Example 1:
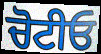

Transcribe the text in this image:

ਚੋਟੀਓ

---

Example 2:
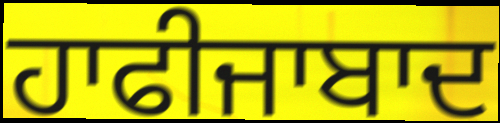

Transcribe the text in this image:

ਹਾਫੀਜਾਬਾਦ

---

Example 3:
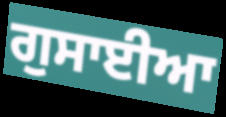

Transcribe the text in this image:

ਗੁਸਾਈਆ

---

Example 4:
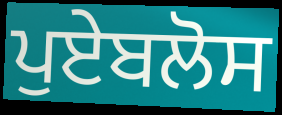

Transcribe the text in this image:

ਪੁਏਬਲੋਸ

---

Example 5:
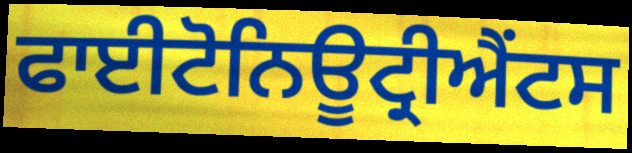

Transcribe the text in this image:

ਫਾਈਟੋਨਿਊਟ੍ਰੀਐਂਟਸ